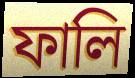
ফালি